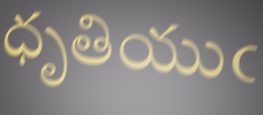
ధృతియుఁ